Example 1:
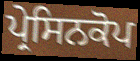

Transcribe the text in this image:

ਪ੍ਰੇਸਿਨਕੋਪ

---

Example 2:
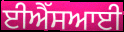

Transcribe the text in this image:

ਈਐੱਸਆਈ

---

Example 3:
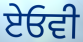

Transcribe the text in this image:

ਏਓਵੀ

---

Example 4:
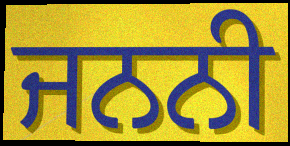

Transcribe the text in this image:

ਜਨਨੀ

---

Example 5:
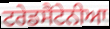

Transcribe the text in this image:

ਟਰੇਡਸੈਂਟੇਨੀਆ